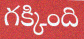
గక్కింది